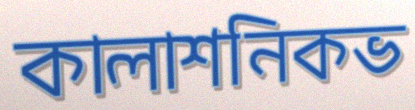
কালাশনিকভ